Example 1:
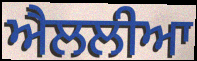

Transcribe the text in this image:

ਐਲਲੀਆ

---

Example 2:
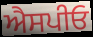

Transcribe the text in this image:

ਐਸਪੀਓ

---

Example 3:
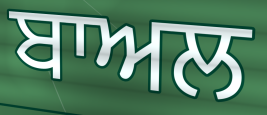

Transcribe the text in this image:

ਬਾਅਲ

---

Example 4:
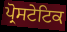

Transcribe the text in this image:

ਪ੍ਰੋਸਟੇਟਿਕ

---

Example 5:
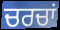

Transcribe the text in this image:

ਚਰਚਾਂ